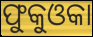
ଫୁକୁଓକା